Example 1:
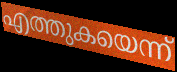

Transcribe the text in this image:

എത്തുകയെന്ന്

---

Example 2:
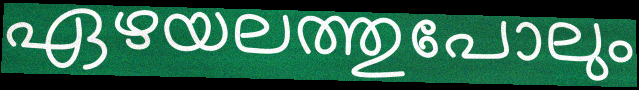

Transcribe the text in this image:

ഏഴയലത്തുപോലും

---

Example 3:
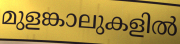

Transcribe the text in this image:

മുളങ്കാലുകളിൽ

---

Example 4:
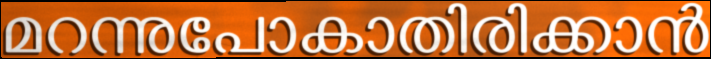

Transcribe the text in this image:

മറന്നുപോകാതിരിക്കാൻ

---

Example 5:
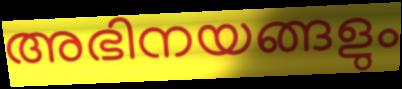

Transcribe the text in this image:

അഭിനയങ്ങളും